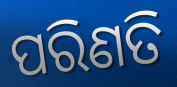
ପରିଣତି